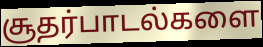
சூதர்பாடல்களை